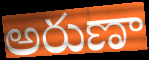
అరుణా